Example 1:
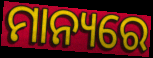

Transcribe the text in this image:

ମାନ୍ୟରେ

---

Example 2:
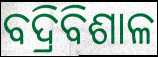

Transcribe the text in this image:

ବଦ୍ରିବିଶାଳ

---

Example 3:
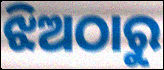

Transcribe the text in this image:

ଝିଅଠାରୁ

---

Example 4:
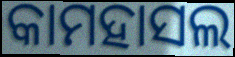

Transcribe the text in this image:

କାମହାସଲ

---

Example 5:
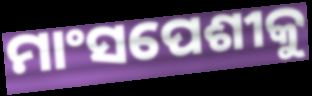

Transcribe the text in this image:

ମାଂସପେଶୀକୁ